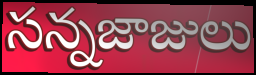
సన్నజాజులు